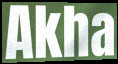
Akha